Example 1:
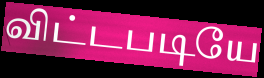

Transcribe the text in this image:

விட்டபடியே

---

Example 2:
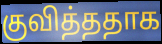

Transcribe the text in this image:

குவித்ததாக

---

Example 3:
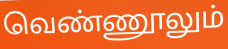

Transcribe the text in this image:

வெண்ணூலும்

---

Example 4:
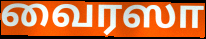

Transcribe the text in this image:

வைரஸா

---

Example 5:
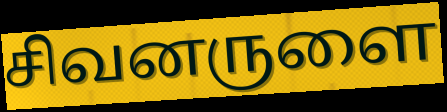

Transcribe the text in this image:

சிவனருளை